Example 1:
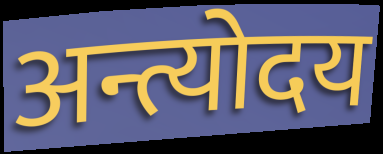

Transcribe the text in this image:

अन्त्योदय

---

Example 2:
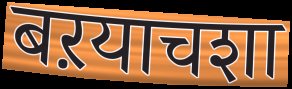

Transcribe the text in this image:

बऱयाचशा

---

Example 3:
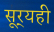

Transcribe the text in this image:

सूर्यही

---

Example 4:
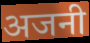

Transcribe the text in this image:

अजनी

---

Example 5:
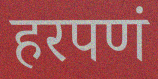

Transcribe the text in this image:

हरपणं